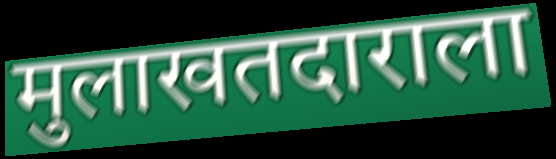
मुलाखतदाराला